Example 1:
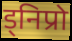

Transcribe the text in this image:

ड्निप्रो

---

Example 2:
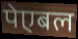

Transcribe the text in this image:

पेएबल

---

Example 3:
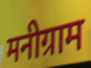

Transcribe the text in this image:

मनीग्राम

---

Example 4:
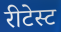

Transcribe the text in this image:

रीटेस्ट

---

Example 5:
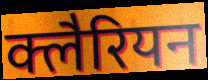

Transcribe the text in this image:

क्लैरियन